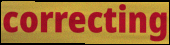
correcting